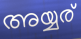
അയ്യര്